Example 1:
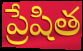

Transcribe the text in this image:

ప్రేషిత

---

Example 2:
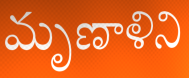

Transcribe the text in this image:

మృణాళిని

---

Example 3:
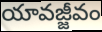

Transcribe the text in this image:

యావజ్జీవం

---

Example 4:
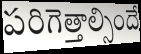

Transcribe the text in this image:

పరిగెత్తాల్సిందే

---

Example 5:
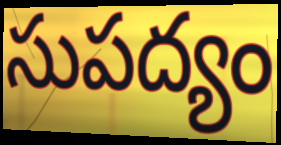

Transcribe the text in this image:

సుపద్యం